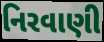
નિરવાણી